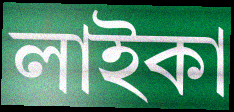
লাইকা